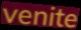
venite